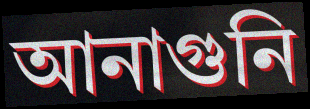
আনাগুনি